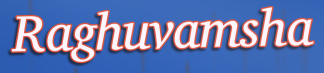
Raghuvamsha